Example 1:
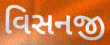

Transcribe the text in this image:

વિસનજી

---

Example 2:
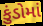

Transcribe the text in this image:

કુંડોમાં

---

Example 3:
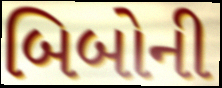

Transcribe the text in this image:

બિબોની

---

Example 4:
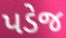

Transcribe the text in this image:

પડેજ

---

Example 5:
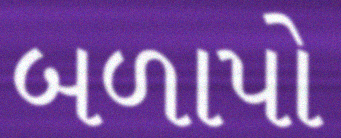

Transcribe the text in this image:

બળાપો